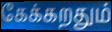
கேக்கறதும்